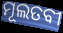
ମୂଲତବୀ